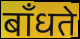
बाँधते